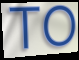
TO